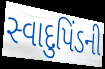
સ્વાદુપિંડની